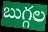
బుగ్గల